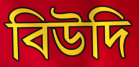
বিউদি